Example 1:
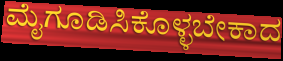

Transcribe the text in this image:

ಮೈಗೂಡಿಸಿಕೊಳ್ಳಬೇಕಾದ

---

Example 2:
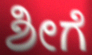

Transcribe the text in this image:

ಶೀಗೆ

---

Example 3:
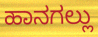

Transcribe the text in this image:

ಹಾನಗಲ್ಲು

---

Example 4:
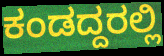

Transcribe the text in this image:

ಕಂಡದ್ದರಲ್ಲಿ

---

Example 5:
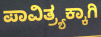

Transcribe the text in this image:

ಪಾವಿತ್ರ್ಯಕ್ಕಾಗಿ